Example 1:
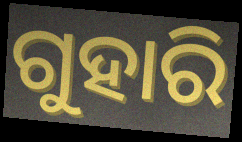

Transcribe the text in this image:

ଗୁହାରି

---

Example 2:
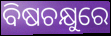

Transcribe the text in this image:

ବିଷଚକ୍ଷୁରେ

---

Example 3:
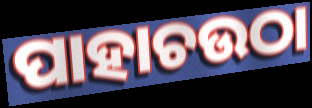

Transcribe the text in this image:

ପାହାଚଉଠା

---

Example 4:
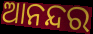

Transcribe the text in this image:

ଆନନ୍ଦର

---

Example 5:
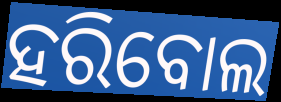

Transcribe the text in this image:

ହରିବୋଲ